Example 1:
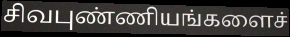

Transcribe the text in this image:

சிவபுண்ணியங்களைச்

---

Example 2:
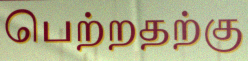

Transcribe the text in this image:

பெற்றதற்கு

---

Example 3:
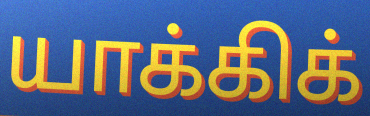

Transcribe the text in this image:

யாக்கிக்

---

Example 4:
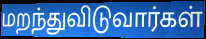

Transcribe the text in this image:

மறந்துவிடுவார்கள்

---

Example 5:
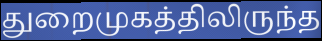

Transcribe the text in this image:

துறைமுகத்திலிருந்த